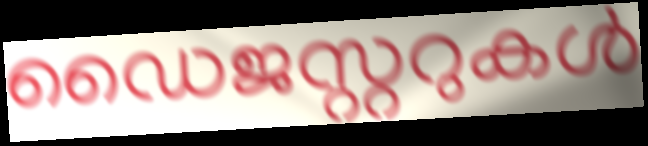
ഡൈജസ്റ്ററുകൾ